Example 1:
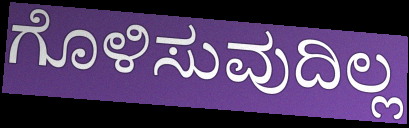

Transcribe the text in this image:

ಗೊಳಿಸುವುದಿಲ್ಲ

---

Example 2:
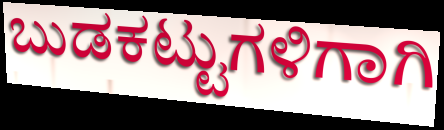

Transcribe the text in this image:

ಬುಡಕಟ್ಟುಗಳಿಗಾಗಿ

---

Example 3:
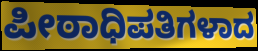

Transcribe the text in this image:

ಪೀಠಾಧಿಪತಿಗಳಾದ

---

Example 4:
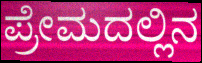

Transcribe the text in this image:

ಪ್ರೇಮದಲ್ಲಿನ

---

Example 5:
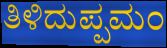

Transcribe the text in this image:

ತಿಳಿದುಪ್ಪಮಂ